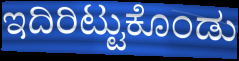
ಇದಿರಿಟ್ಟುಕೊಂಡು